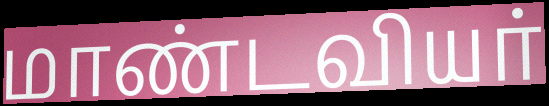
மாண்டவியர்